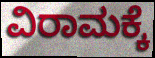
ವಿರಾಮಕ್ಕೆ